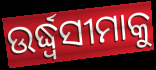
ଉର୍ଦ୍ଧ୍ୱସୀମାକୁ